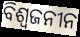
ବିଶ୍ୱଜନୀନ